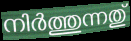
നിർത്തുന്നതു്